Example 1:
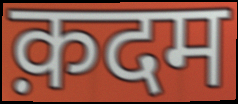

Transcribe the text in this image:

क़दम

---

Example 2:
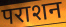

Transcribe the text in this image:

पराशन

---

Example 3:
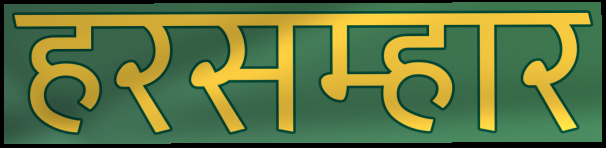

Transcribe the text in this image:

हरसम्हार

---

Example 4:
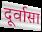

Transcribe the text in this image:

दूर्वासा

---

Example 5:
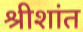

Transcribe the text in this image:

श्रीशांत